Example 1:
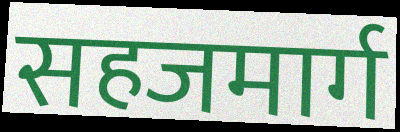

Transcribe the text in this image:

सहजमार्ग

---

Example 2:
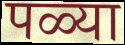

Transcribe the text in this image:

पळ्या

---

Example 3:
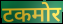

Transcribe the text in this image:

टकमोर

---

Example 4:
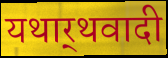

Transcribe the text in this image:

यथार्थवादी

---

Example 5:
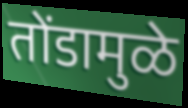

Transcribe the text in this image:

तोंडामुळे